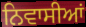
ਨਿਵਾਸੀਆਂ